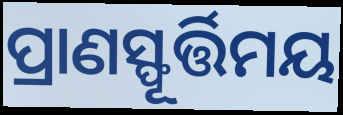
ପ୍ରାଣସ୍ଫୂର୍ତ୍ତିମୟ